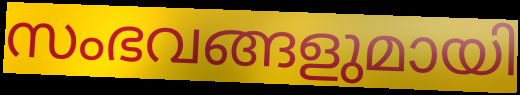
സംഭവങ്ങളുമായി